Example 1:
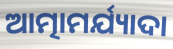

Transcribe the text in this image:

ଆତ୍ମାମର୍ଯ୍ୟାଦା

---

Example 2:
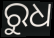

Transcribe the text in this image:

ରୁଧ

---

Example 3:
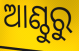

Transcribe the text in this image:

ଆଣ୍ଠୁରୁ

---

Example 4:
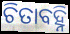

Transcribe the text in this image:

ଚିତାବହ୍ନି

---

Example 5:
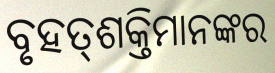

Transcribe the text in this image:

ବୃହତ୍‍ଶକ୍ତିମାନଙ୍କର